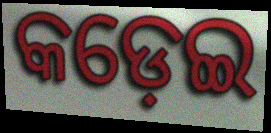
କଡ଼େଇ